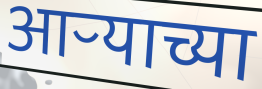
आऱ्याच्या